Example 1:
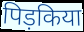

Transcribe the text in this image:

पिड़किया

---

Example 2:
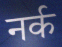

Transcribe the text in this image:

नर्क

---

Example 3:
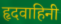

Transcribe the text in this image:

हृदवाहिनी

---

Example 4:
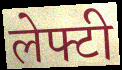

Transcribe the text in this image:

लेफ्टी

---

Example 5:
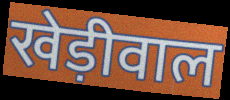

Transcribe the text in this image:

खेड़ीवाल